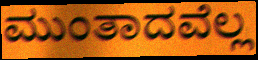
ಮುಂತಾದವೆಲ್ಲ